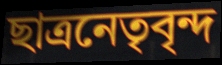
ছাত্রনেতৃবৃন্দ